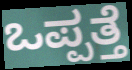
ಒಪ್ಪತ್ತೆ